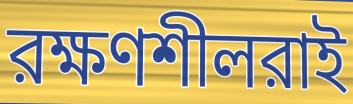
রক্ষণশীলরাই